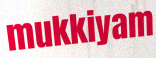
mukkiyam